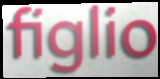
figlio